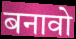
बनावो